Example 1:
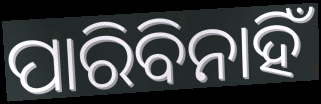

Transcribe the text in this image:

ପାରିବିନାହିଁ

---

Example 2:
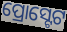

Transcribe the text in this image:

ପ୍ରୋସ୍ଟେଟ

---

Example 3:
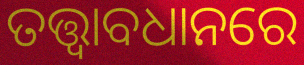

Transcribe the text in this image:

ତତ୍ତ୍ଵାବଧାନରେ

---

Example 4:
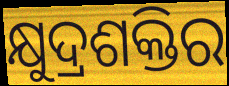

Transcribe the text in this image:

କ୍ଷୁଦ୍ରଶକ୍ତିର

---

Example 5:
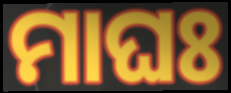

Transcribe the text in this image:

ମାଘଃ